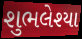
શુભલેશ્યા